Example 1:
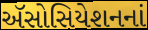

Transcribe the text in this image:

ઍસોસિયેશનનાં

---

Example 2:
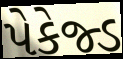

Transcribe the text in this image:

પેકેજ્ડ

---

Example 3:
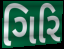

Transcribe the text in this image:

ગિરિ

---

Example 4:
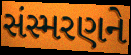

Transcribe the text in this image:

સંસ્મરણને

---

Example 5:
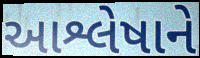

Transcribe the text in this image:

આશ્લેષાને